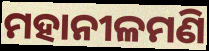
ମହାନୀଳମଣି